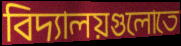
বিদ্যালয়গুলোতে